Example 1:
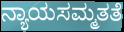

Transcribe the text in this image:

ನ್ಯಾಯಸಮ್ಮತತೆ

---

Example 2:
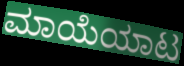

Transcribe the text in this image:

ಮಾಯೆಯಾಟ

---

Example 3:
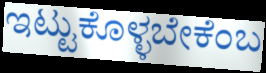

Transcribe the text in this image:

ಇಟ್ಟುಕೊಳ್ಳಬೇಕೆಂಬ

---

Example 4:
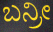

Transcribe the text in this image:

ಬನ್ರೀ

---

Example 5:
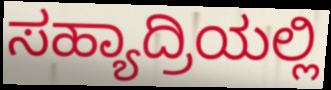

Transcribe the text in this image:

ಸಹ್ಯಾದ್ರಿಯಲ್ಲಿ